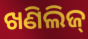
ଖଣିଲିଜ୍